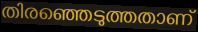
തിരഞ്ഞെടുത്തതാണ്